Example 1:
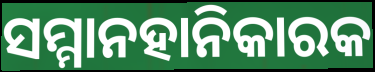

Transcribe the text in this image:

ସମ୍ମାନହାନିକାରକ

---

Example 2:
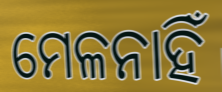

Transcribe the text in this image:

ମେଳନାହିଁ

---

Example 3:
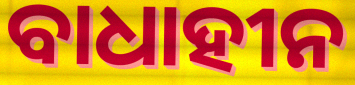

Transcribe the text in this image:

ବାଧାହୀନ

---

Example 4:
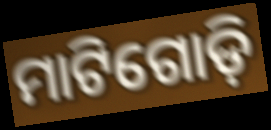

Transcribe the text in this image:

ମାଟିଗୋଡ଼ି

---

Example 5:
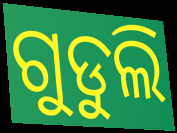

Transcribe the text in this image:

ଗୁଡୁଲି